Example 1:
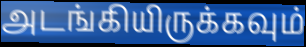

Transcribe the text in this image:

அடங்கியிருக்கவும்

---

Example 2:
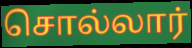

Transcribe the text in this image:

சொல்லார்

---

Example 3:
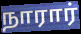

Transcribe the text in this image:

நாரார்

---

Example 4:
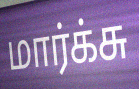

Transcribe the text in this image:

மார்க்சு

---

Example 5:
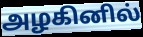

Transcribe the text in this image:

அழகினில்